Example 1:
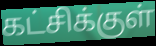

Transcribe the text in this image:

கட்சிக்குள்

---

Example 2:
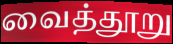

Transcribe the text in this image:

வைத்தூறு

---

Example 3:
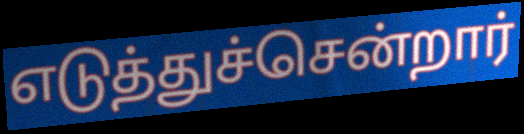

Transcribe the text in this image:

எடுத்துச்சென்றார்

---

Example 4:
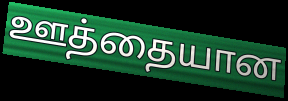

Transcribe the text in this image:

ஊத்தையான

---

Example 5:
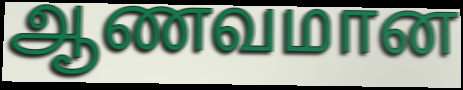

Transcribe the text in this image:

ஆணவமான